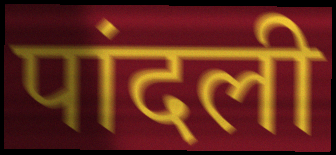
पांदली